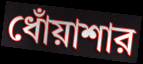
ধোঁয়াশার